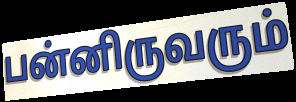
பன்னிருவரும்